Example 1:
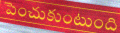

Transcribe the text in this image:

పెంచుకుంటుంది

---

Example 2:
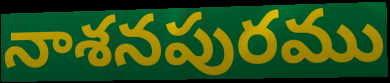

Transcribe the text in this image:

నాశనపురము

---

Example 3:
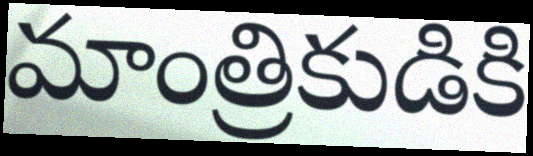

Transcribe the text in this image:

మాంత్రికుడికి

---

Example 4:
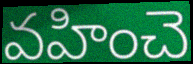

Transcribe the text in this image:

వహించె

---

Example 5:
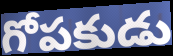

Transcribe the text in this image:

గోపకుడు